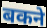
बकने